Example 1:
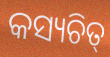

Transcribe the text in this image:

କସ୍ୟଚିତ୍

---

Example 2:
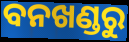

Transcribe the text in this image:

ବନଖଣ୍ଡରୁ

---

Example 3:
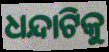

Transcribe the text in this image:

ଧନ୍ଦାଟିକୁ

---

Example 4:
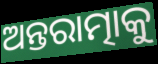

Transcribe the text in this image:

ଅନ୍ତରାତ୍ମାକୁ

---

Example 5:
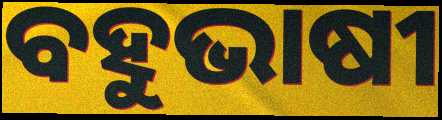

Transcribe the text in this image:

ବହୁଭାଷୀ